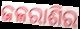
ଜଳରାଶିର